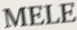
MELE